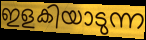
ഇളകിയാടുന്ന